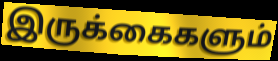
இருக்கைகளும்